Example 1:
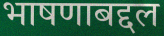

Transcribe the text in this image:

भाषणाबद्दल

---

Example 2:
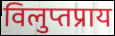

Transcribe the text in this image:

विलुप्तप्राय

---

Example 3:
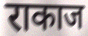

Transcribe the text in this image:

राकाज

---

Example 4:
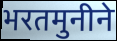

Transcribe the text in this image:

भरतमुनीने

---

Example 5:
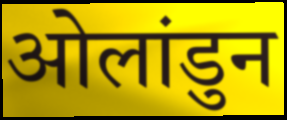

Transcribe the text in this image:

ओलांडुन